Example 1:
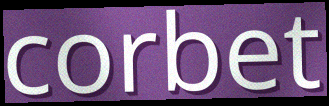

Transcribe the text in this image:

corbet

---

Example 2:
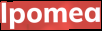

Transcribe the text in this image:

Ipomea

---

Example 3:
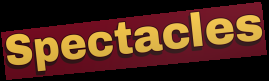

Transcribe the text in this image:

Spectacles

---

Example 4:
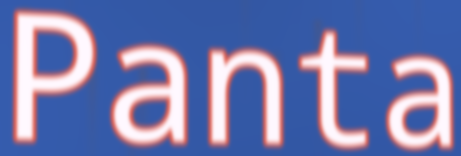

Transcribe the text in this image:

Panta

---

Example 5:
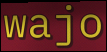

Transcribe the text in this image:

wajo